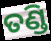
ତଣ୍ଡି